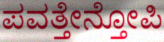
ಪವತ್ತೇನ್ತೋಪಿ